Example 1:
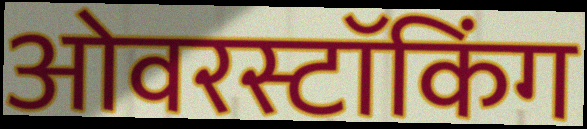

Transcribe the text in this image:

ओवरस्टॉकिंग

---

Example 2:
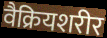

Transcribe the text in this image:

वैक्रियशरीर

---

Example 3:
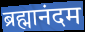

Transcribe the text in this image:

ब्रह्मानंदम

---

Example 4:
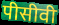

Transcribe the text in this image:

पीसीवी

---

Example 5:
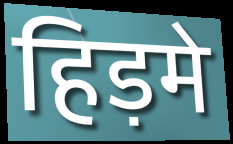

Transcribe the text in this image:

हिड़मे